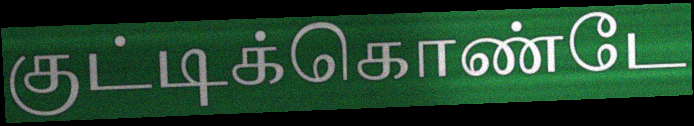
குட்டிக்கொண்டே